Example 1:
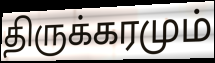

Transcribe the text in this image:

திருக்கரமும்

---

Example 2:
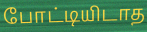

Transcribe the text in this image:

போட்டியிடாத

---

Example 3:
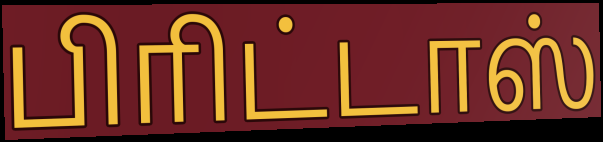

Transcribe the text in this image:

பிரிட்டாஸ்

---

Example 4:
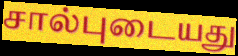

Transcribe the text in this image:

சால்புடையது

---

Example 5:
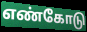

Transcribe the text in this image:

எண்கோடு